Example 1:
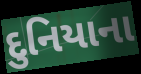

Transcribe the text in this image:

દુનિયાના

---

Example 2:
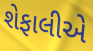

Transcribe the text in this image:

શેફાલીએ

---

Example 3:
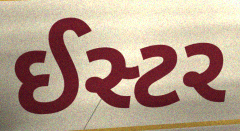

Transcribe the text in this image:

ઈસ્ટર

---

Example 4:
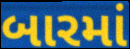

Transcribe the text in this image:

બારમાં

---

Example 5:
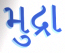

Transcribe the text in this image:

મુદ્રા